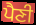
ਪੈਣੀ